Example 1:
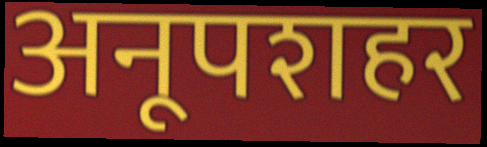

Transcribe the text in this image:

अनूपशहर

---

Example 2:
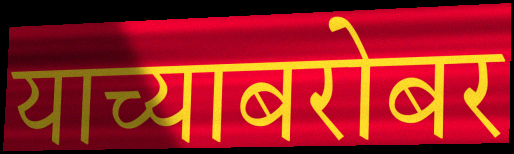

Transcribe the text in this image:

याच्याबरोबर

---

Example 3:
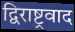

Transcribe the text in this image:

द्विराष्ट्रवाद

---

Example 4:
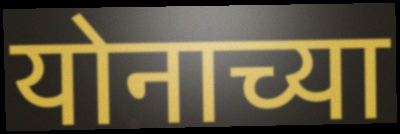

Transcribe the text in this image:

योनाच्या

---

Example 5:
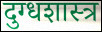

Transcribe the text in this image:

दुग्धशास्त्र